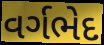
વર્ગભેદ